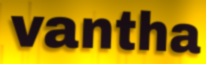
vantha